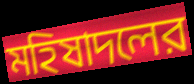
মহিষাদলের